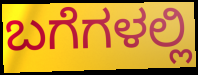
ಬಗೆಗಳಲ್ಲಿ